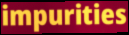
impurities